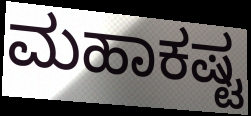
ಮಹಾಕಷ್ಟ